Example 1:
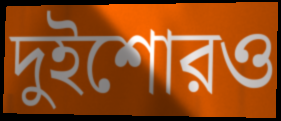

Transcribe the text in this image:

দুইশোরও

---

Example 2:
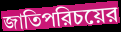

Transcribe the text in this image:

জাতিপরিচয়ের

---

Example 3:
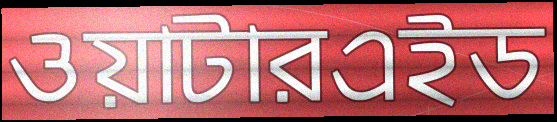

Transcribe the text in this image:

ওয়াটারএইড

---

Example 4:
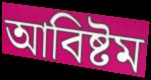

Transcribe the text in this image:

আবিষ্টম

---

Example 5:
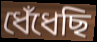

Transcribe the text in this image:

ধেঁধেছি